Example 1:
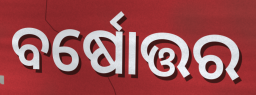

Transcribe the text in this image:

ବର୍ଷୋତ୍ତର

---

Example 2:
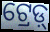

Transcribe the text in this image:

ଟ୍ରେଡ଼୍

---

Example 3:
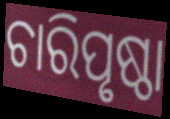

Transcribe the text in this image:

ଚାରିପୃଷ୍ଠା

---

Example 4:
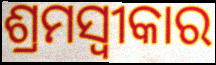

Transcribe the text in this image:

ଶ୍ରମସ୍ୱୀକାର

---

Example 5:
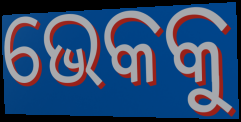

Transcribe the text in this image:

ଭେକକୁ